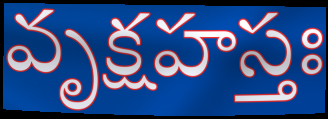
వృక్షహస్తః